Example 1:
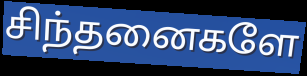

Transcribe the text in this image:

சிந்தனைகளே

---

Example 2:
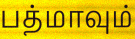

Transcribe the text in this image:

பத்மாவும்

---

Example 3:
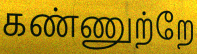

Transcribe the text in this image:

கண்ணுற்றே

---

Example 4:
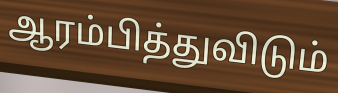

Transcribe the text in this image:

ஆரம்பித்துவிடும்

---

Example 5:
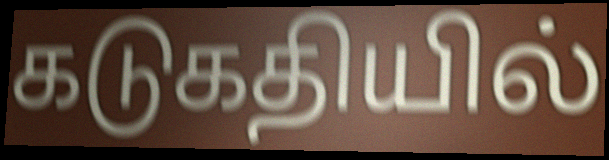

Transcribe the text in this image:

கடுகதியில்